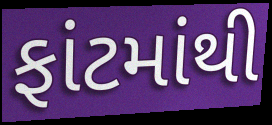
ફાંટમાંથી